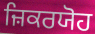
ਜ਼ਿਕਰਯੋਹ